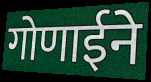
गोणाईने